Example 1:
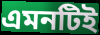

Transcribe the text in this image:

এমনটিই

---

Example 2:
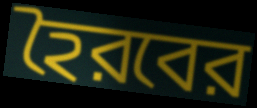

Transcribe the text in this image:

হৈরবের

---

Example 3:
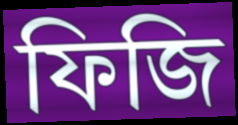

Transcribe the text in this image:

ফিজি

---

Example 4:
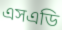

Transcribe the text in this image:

এসএডি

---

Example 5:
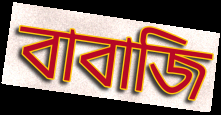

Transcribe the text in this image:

বাবাজি